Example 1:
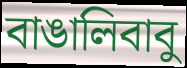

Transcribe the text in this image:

বাঙালিবাবু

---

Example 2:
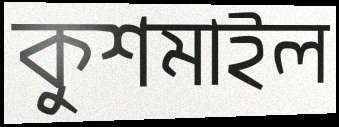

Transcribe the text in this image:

কুশমাইল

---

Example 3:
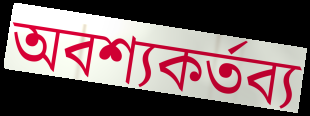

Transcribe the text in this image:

অবশ্যকর্তব্য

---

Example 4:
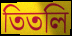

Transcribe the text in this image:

তিতলি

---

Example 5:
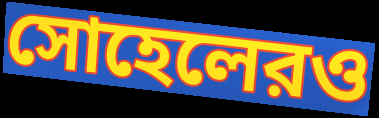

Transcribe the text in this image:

সোহেলেরও